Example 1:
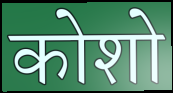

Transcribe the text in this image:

कोशो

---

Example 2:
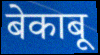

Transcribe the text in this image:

बेकाबू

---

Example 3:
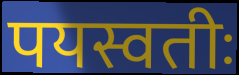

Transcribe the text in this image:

पयस्वतीः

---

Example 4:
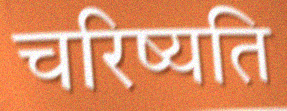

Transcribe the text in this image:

चरिष्यति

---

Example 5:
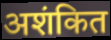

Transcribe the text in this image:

अशंकित